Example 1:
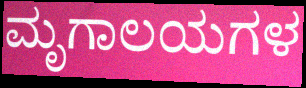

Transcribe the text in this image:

ಮೃಗಾಲಯಗಳ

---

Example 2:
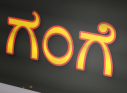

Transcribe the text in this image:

ಗಂಗೆ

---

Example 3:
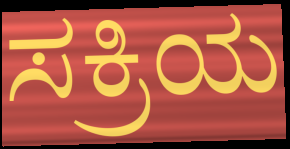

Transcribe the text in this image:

ಸಕ್ರಿಯ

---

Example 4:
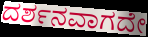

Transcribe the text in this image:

ದರ್ಶನವಾಗದೇ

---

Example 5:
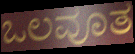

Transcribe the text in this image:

ಒಲವೂತ